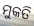
ମୁକତି